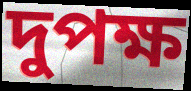
দুপক্ষ